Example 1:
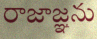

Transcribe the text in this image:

రాజాజ్ఞను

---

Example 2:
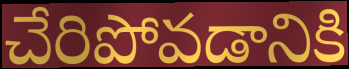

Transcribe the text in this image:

చేరిపోవడానికి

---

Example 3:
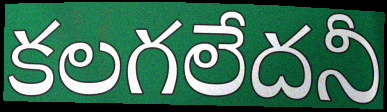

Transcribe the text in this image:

కలగలేదనీ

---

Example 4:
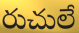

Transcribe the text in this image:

రుచులే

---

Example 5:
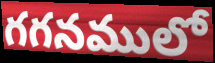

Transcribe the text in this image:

గగనములో